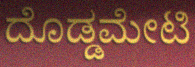
ದೊಡ್ಡಮೇಟಿ